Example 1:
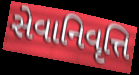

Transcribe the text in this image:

સેવાનિવૃત્તિ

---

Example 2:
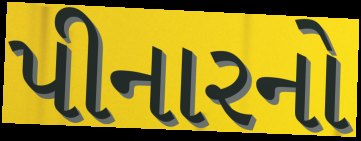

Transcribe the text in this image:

પીનારનો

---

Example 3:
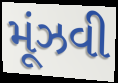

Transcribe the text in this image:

મૂંઝવી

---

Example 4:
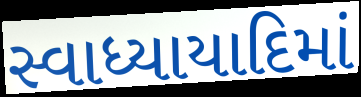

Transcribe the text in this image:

સ્વાધ્યાયાદિમાં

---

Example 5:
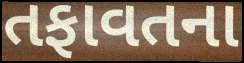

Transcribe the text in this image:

તફાવતના